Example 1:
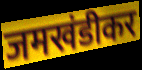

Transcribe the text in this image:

जमखंडीकर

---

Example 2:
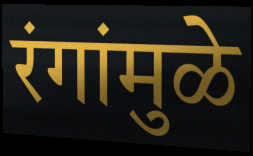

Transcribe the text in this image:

रंगांमुळे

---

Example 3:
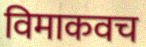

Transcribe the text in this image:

विमाकवच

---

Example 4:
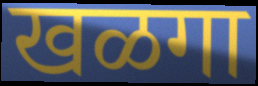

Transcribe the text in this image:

खळगा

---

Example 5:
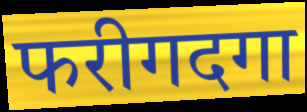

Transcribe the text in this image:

फरीगदगा